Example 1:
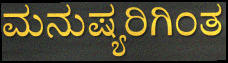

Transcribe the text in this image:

ಮನುಷ್ಯರಿಗಿಂತ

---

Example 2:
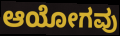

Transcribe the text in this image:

ಆಯೋಗವು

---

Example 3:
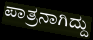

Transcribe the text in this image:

ಪಾತ್ರನಾಗಿದ್ದು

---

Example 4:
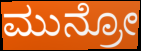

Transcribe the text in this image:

ಮುನ್ರೋ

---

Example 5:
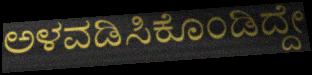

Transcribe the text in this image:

ಅಳವಡಿಸಿಕೊಂಡಿದ್ದೇ